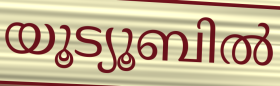
യൂട്യൂബിൽ